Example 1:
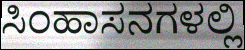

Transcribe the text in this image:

ಸಿಂಹಾಸನಗಳಲ್ಲಿ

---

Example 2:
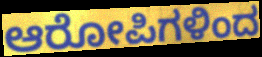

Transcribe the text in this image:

ಆರೋಪಿಗಳಿಂದ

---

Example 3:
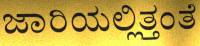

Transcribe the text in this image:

ಜಾರಿಯಲ್ಲಿತ್ತಂತೆ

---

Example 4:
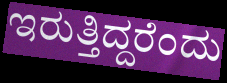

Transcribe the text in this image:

ಇರುತ್ತಿದ್ದರೆಂದು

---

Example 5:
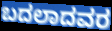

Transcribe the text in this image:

ಬದಲಾದವರ